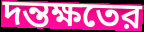
দন্তক্ষতের